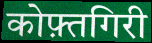
कोफ़्तगिरी